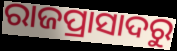
ରାଜପ୍ରାସାଦରୁ